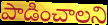
పాడించాలని